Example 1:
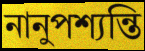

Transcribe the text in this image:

নানুপশ্যন্তি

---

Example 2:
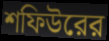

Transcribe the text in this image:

শফিউরের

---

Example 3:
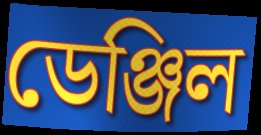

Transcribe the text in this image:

ডেঞ্জিল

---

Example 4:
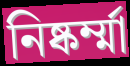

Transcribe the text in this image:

নিষ্কর্ম্মা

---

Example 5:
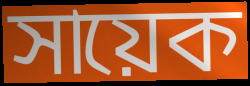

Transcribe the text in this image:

সায়েক